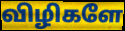
விழிகளே